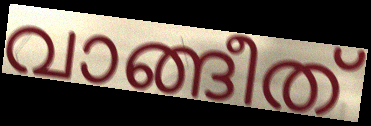
വാങ്ങീത്